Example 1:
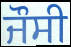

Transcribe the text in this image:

ਜੌਸੀ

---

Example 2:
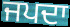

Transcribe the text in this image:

ਜਪਦਾ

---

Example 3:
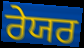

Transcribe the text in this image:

ਰੇਯਰ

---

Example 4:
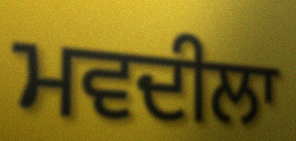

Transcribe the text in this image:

ਮਵਦੀਲਾ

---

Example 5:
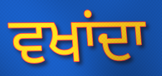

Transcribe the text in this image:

ਵਖਾਂਦਾ